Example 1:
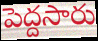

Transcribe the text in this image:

పెద్దసారు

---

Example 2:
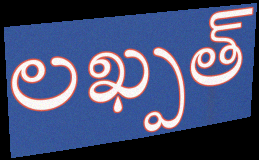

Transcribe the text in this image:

లఖ్పత్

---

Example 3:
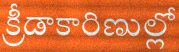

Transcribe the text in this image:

క్రీడాకారిణుల్లో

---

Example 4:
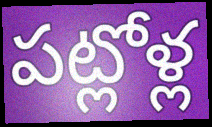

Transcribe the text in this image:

పట్లోళ్ల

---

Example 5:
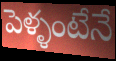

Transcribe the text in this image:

పెళ్ళంటేనే